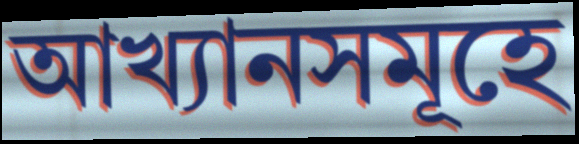
আখ্যানসমূহে